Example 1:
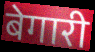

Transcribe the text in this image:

बेगारी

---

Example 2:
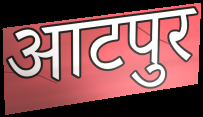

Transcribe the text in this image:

आटपुर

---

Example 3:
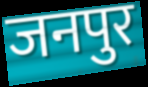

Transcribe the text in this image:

जनपुर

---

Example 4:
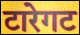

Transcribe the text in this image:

टारेगट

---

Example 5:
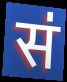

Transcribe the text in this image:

स॑